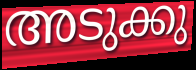
അടുക്കു